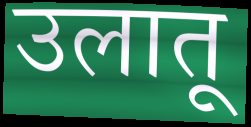
उलातू